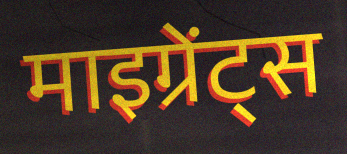
माइग्रेंट्स